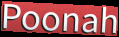
Poonah